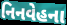
નિનવેહના